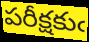
పరీక్షకుఁ